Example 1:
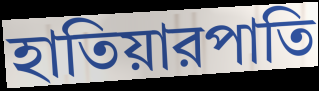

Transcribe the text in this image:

হাতিয়ারপাতি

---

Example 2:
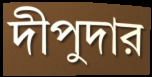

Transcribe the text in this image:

দীপুদার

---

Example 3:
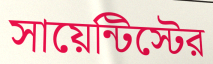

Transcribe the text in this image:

সায়েন্টিস্টের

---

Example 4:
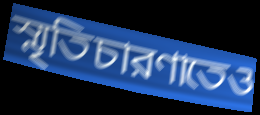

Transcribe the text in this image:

স্মৃতিচারণাতেও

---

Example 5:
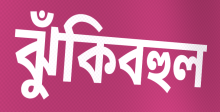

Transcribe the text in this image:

ঝুঁকিবহুল